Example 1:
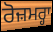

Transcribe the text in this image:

ਰੋਜ਼ਮਰ੍ਹਾ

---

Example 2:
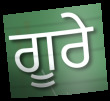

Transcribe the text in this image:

ਗੂਰੇ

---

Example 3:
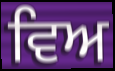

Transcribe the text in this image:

ਵਿਅ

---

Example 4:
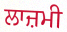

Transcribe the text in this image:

ਲਾਜ਼ਮੀ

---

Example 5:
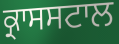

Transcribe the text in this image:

ਕ੍ਰਾਸਸਟਾਲ